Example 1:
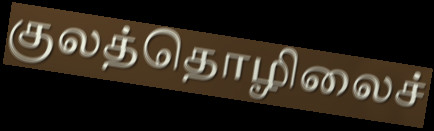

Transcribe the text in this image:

குலத்தொழிலைச்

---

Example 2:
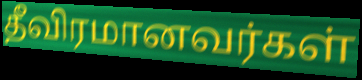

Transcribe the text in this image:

தீவிரமானவர்கள்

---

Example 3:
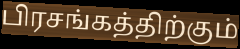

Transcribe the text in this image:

பிரசங்கத்திற்கும்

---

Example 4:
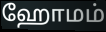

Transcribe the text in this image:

ஹோமம்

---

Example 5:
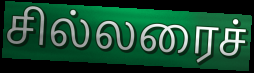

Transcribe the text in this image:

சில்லரைச்